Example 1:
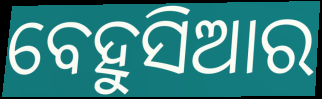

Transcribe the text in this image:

ବେହୁସିଆର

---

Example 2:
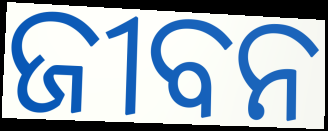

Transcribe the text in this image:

ଜୀବନ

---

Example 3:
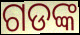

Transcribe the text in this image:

ଗଡଙ୍କ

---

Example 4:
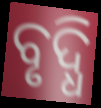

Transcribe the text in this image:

ବୃଦ୍ଧି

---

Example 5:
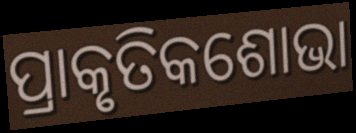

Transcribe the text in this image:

ପ୍ରାକୃତିକଶୋଭା